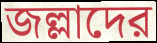
জল্লাদের